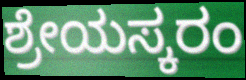
ಶ್ರೇಯಸ್ಕರಂ